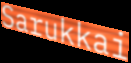
Sarukkai